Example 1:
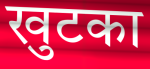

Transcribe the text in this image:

खुटका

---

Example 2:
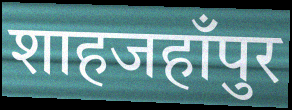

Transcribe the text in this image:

शाहजहाँपुर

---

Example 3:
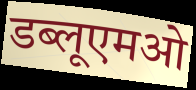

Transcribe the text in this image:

डब्लूएमओ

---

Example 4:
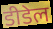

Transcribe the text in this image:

डीडेल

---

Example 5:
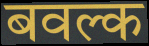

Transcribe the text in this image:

बवल्क